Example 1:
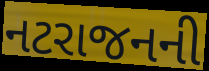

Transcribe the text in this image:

નટરાજનની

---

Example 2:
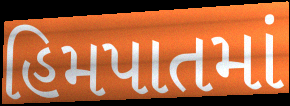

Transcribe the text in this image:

હિમપાતમાં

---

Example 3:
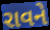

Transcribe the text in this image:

રાવને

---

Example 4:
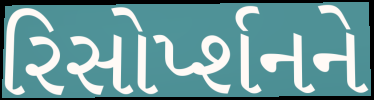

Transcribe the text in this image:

રિસોર્પ્શનને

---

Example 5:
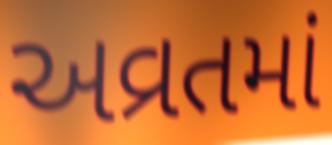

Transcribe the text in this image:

અવ્રતમાં